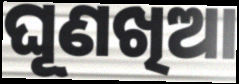
ଘୂଣଖିଆ